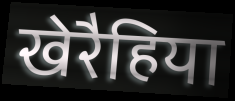
खेरैहिया